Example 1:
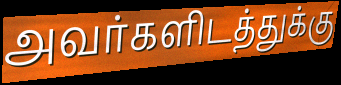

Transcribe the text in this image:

அவர்களிடத்துக்கு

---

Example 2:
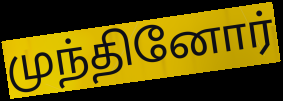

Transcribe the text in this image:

முந்தினோர்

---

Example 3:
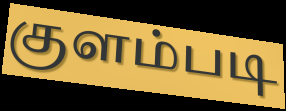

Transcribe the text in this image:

குளம்படி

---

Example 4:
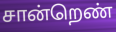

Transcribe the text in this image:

சான்றெண்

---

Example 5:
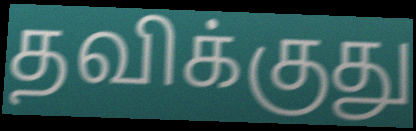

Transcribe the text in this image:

தவிக்குது